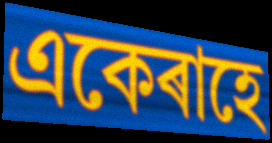
একেৰাহে